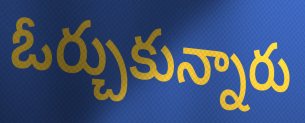
ఓర్చుకున్నారు